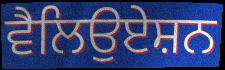
ਵੈਲਿਉਏਸ਼ਨ